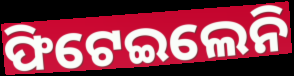
ଫିଟେଇଲେନି